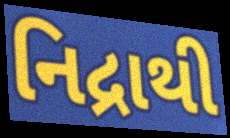
નિદ્રાથી